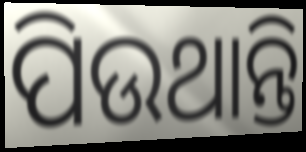
ପିଉଥାନ୍ତି